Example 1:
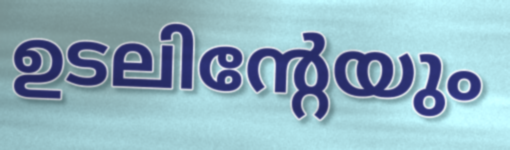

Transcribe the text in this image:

ഉടലിന്റേയും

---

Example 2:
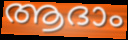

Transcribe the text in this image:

ആദാം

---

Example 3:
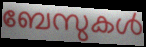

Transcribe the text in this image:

ബേസുകൾ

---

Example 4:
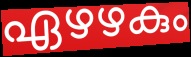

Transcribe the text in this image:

ഏഴഴകും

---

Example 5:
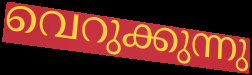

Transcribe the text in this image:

വെറുക്കുന്നു